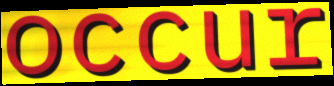
occur